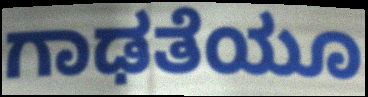
ಗಾಢತೆಯೂ